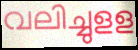
വലിച്ചുളള